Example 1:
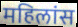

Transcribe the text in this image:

महिलांस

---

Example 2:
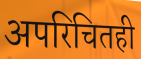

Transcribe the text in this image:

अपरिचितही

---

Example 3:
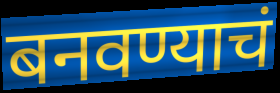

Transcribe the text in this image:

बनवण्याचं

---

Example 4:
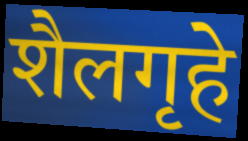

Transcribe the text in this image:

शैलगृहे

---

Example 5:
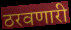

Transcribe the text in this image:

ठरवणारी